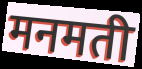
मनमती